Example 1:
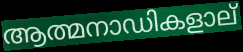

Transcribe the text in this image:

ആത്മനാഡികളാല്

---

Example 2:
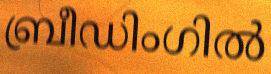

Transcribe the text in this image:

ബ്രീഡിംഗിൽ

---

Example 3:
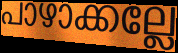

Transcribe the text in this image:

പാഴാക്കല്ലേ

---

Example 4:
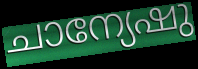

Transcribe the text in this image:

ചാന്യേഷു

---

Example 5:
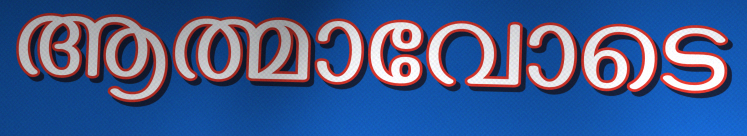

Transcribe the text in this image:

ആത്മാവോടെ